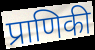
प्राणिकी